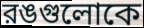
রঙগুলোকে